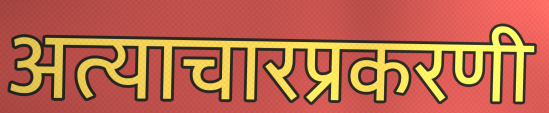
अत्याचारप्रकरणी